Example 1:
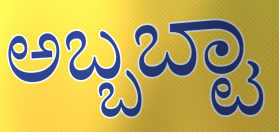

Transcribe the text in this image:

ಅಬ್ಬಬ್ಟಾ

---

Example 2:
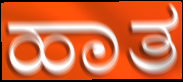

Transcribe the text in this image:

ಹಾತ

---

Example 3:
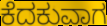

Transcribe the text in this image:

ಕೆದಕುವಾಗ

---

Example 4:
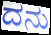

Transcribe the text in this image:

ದನು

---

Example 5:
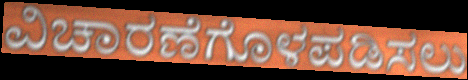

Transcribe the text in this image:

ವಿಚಾರಣೆಗೊಳಪಡಿಸಲು